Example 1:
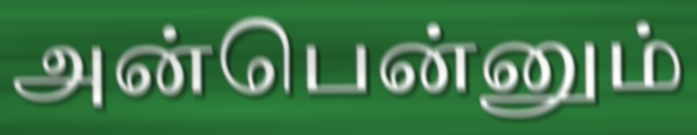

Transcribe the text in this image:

அன்பென்னும்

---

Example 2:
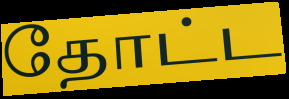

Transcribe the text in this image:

தோட்ட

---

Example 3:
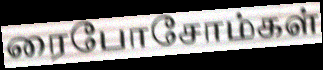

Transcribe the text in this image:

ரைபோசோம்கள்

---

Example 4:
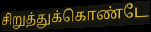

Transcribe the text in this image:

சிறுத்துக்கொண்டே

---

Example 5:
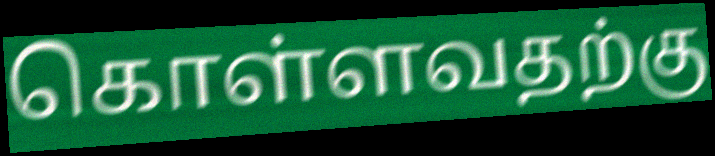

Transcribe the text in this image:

கொள்ளவதற்கு